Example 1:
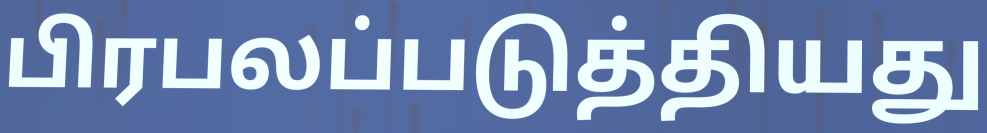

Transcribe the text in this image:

பிரபலப்படுத்தியது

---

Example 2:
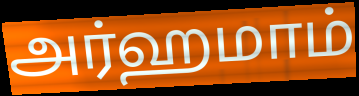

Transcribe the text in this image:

அர்ஹமாம்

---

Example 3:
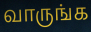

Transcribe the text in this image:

வாருங்க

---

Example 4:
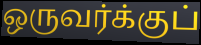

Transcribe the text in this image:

ஒருவர்க்குப்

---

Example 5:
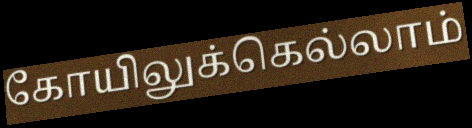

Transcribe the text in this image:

கோயிலுக்கெல்லாம்